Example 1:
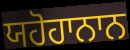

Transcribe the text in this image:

ਯਹੋਹਾਨਾਨ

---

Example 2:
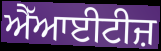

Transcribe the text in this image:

ਐੱਆਈਟੀਜ਼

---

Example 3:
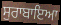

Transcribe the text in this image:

ਸੁਰਾਬਾਇਆ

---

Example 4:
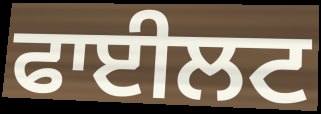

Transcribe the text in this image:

ਫਾਈਲਟ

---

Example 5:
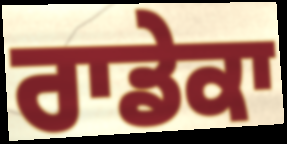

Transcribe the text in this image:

ਰਾਡੇਕਾ